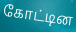
கோட்டின